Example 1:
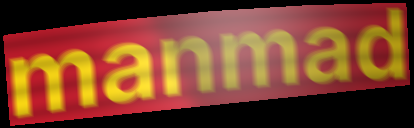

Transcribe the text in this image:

manmad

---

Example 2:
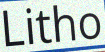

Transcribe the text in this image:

Litho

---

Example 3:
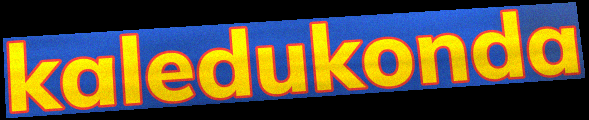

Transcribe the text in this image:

kaledukonda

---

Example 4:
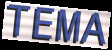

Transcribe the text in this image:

TEMA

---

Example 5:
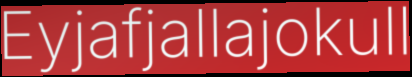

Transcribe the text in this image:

Eyjafjallajokull